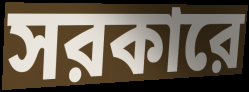
সরকারে